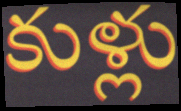
కుళ్లు